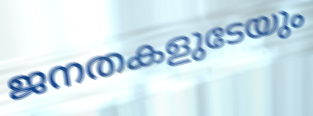
ജനതകളുടേയും